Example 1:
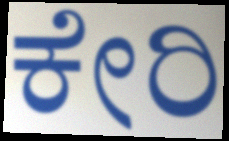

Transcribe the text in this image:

ಕೇರಿ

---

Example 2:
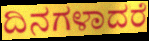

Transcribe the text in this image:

ದಿನಗಳಾದರೆ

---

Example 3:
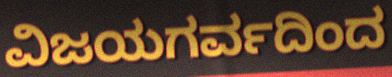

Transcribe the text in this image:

ವಿಜಯಗರ್ವದಿಂದ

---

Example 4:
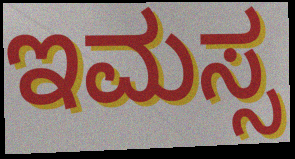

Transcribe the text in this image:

ಇಮಸ್ಸ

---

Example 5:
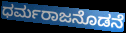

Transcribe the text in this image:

ಧರ್ಮರಾಜನೊಡನೆ